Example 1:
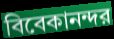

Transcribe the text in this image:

বিবেকানন্দর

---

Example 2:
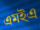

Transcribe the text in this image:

এমইএ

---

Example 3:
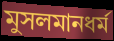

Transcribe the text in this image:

মুসলমানধর্ম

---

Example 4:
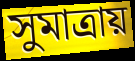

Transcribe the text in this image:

সুমাত্রায়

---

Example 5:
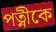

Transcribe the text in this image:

পত্নীকে